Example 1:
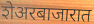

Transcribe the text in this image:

शेअरबाजारात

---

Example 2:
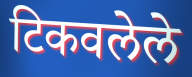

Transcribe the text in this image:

टिकवलेले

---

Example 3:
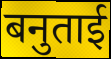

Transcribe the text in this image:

बनुताई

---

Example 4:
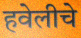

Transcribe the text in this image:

हवेलीचे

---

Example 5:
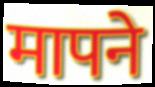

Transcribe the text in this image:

मापने